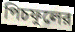
পিচফুলের